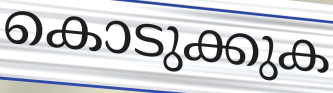
കൊടുക്കുക